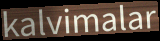
kalvimalar